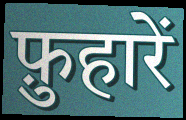
फ़ुहारें